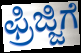
ಫ್ರಿಜ್ಜಿಗೆ